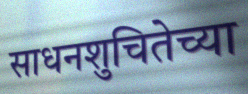
साधनशुचितेच्या